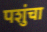
पशुंचा